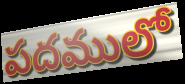
పదములో